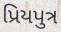
પ્રિયપુત્ર